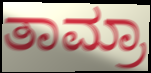
ತಾಮ್ರಾ